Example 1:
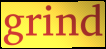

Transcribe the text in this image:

grind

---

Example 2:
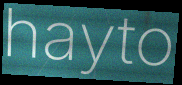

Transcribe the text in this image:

hayto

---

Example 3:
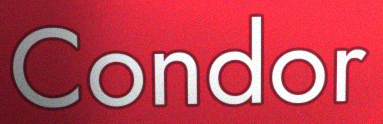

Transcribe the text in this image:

Condor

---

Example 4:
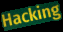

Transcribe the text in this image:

Hacking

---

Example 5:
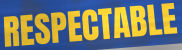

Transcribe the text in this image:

RESPECTABLE